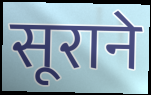
सूराने